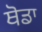
ਥੋਡਾ